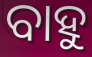
ବାହୁ